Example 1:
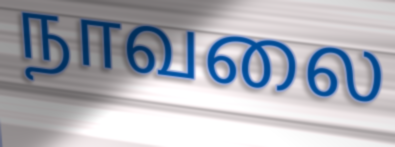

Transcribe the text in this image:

நாவலை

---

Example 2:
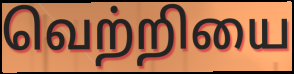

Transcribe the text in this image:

வெற்றியை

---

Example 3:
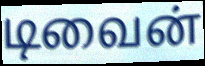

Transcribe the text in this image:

டிவைன்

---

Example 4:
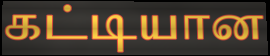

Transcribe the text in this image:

கட்டியான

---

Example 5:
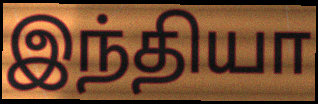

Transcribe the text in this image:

இந்தியா